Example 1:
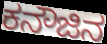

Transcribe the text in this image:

ಕನೌಜಿನ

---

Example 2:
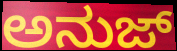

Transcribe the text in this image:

ಅನುಜ್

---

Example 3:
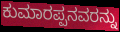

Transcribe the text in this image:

ಕುಮಾರಪ್ಪನವರನ್ನು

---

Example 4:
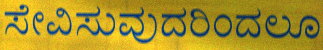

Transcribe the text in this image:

ಸೇವಿಸುವುದರಿಂದಲೂ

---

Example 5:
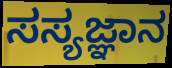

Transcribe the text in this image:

ಸಸ್ಯಜ್ಞಾನ